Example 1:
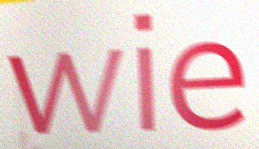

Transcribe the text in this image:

wie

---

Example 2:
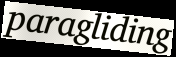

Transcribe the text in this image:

paragliding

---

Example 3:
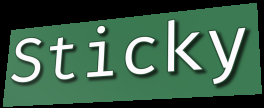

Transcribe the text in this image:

Sticky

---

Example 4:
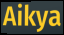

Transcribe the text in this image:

Aikya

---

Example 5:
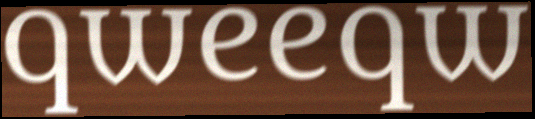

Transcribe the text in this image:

qweeqw